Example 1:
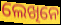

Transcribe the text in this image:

ଲେଖିନେ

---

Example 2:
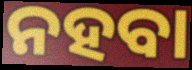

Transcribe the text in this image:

ନହବା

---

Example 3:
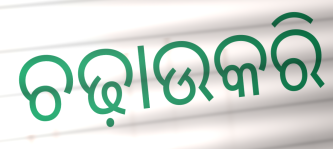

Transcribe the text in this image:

ଚଢ଼ାଉକରି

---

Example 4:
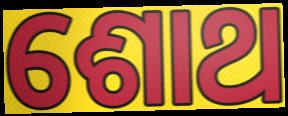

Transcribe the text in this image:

ଶୋଥ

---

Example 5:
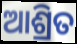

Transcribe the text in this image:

ଆଶ୍ରିତ